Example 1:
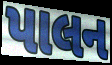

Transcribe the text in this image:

પાલન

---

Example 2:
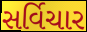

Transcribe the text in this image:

સર્વિચાર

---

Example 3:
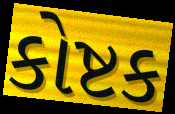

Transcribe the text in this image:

કોષ્ટક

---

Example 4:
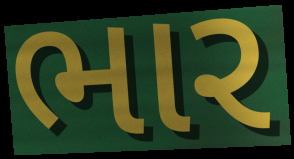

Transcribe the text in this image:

ભાર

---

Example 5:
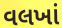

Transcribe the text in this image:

વલખાં